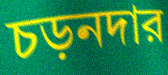
চড়নদার